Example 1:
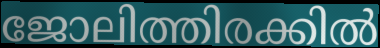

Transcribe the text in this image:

ജോലിത്തിരക്കിൽ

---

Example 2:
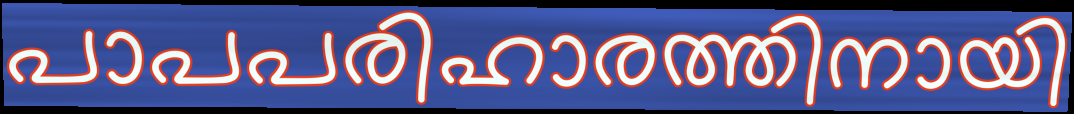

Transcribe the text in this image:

പാപപരിഹാരത്തിനായി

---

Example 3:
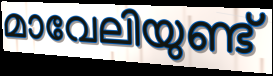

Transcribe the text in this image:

മാവേലിയുണ്ട്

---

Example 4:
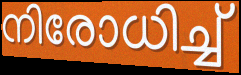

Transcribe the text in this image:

നിരോധിച്ച്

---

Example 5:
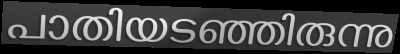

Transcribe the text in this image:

പാതിയടഞ്ഞിരുന്നു